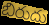
బిరుదు